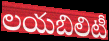
లయబిలిటీ